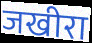
जखीरा